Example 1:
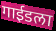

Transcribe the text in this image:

गाईडला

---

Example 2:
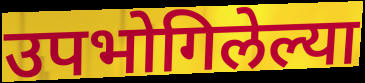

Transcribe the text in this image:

उपभोगिलेल्या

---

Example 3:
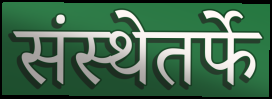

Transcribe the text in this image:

संस्थेतर्फे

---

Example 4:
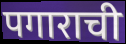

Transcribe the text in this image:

पगाराची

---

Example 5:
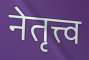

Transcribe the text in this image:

नेतृत्त्व